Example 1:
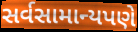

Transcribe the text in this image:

સર્વસામાન્યપણે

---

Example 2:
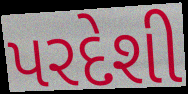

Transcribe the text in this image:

પરદેશી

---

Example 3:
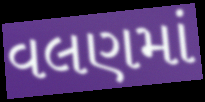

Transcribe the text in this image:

વલણમાં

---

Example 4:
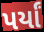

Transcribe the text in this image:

પર્યાં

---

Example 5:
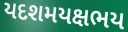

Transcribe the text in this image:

યદશમયક્ષભય